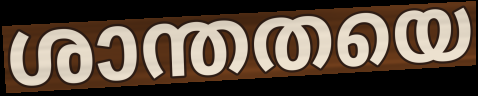
ശാന്തതയെ